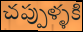
చప్పుళ్ళకి